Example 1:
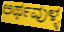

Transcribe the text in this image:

ಅರ್ಥವುಳ್ಳ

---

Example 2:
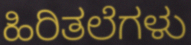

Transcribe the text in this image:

ಹಿರಿತಲೆಗಳು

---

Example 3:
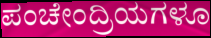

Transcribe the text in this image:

ಪಂಚೇಂದ್ರಿಯಗಳೂ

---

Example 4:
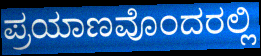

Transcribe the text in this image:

ಪ್ರಯಾಣವೊಂದರಲ್ಲಿ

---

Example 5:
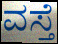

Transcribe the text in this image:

ವಸ್ತೆ